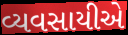
વ્યવસાયીએ